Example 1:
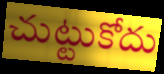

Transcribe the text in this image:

చుట్టుకోదు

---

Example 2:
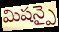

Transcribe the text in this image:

మిషన్పై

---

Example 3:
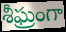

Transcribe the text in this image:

శీఘ్రంగా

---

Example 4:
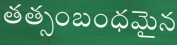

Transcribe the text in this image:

తత్సంబంధమైన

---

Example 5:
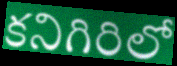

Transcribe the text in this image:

కనిగిరిలో